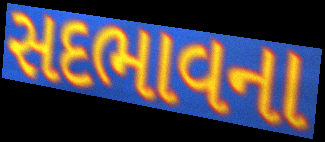
સદભાવના